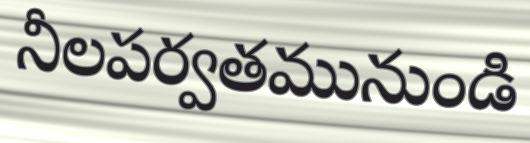
నీలపర్వతమునుండి